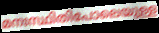
മനഃസ്ഥിതിപോലെയുള്ള